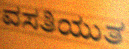
ವಸತಿಯುತ